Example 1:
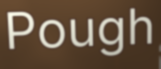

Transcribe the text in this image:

Pough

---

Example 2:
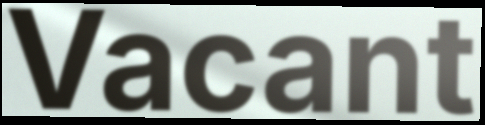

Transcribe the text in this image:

Vacant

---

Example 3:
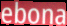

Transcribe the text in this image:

ebona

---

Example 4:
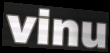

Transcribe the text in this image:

vinu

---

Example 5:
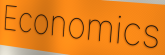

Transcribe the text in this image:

Economics